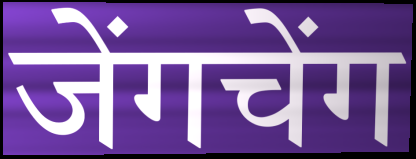
जेंगचेंग